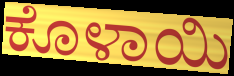
ಕೊಳಾಯಿ